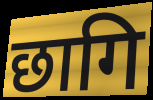
छागि